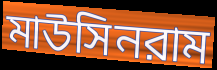
মাউসিনরাম